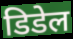
डिडेल